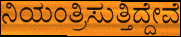
ನಿಯಂತ್ರಿಸುತ್ತಿದ್ದೇವೆ